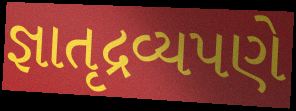
જ્ઞાતૃદ્રવ્યપણે